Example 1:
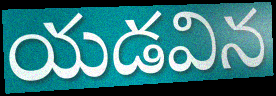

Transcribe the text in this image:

యడవిన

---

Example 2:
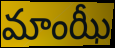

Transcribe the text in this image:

మాంఝీ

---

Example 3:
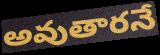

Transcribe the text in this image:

అవుతారనే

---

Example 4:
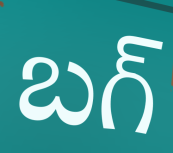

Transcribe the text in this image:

బగ్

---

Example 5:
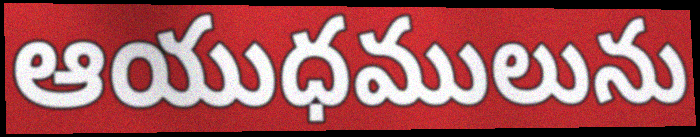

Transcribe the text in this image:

ఆయుధములును